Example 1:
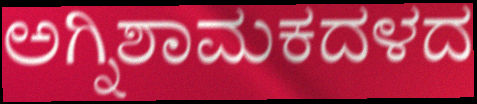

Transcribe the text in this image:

ಅಗ್ನಿಶಾಮಕದಳದ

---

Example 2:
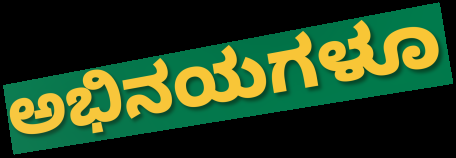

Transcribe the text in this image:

ಅಭಿನಯಗಳೂ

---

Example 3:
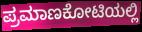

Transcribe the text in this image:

ಪ್ರಮಾಣಕೋಟಿಯಲ್ಲಿ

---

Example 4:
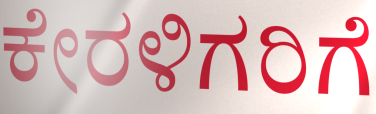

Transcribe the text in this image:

ಕೇರಳಿಗರಿಗೆ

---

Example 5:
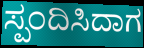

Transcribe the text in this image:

ಸ್ಪಂದಿಸಿದಾಗ